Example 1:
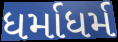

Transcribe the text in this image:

ધર્માધર્મ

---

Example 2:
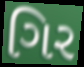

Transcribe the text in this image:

ગિર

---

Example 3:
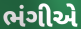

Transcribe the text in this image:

ભંગીએ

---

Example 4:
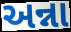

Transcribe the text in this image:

અન્ના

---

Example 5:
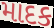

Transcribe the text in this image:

માદક